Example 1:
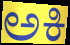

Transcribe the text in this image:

ಅಕಿ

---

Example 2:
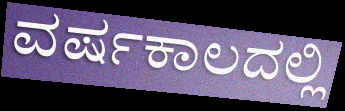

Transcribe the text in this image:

ವರ್ಷಕಾಲದಲ್ಲಿ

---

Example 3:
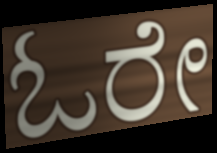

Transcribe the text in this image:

ಓರೇ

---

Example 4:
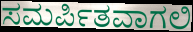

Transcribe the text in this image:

ಸಮರ್ಪಿತವಾಗಲಿ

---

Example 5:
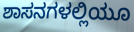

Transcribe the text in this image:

ಶಾಸನಗಳಲ್ಲಿಯೂ